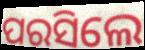
ପରସିଲେ